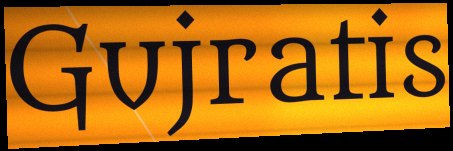
Gujratis